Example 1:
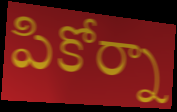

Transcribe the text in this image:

పికోర్నా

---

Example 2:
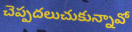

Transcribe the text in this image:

చెప్పదలుచుకున్నావో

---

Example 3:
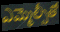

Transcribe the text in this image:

ఎమ్మెల్సీతో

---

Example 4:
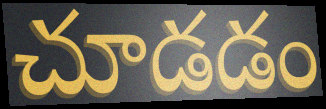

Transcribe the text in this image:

చూడడం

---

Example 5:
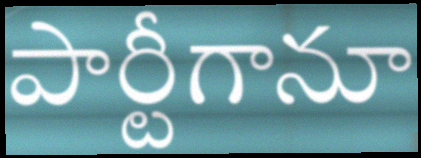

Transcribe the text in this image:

పార్టీగానూ